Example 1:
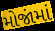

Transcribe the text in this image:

મોજાંમાં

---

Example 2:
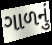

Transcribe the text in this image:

ગાળનું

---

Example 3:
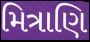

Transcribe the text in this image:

મિત્રાણિ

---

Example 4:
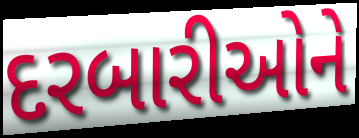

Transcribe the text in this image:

દરબારીઓને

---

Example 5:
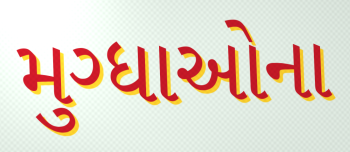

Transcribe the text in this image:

મુગ્ધાઓના